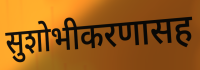
सुशोभीकरणासह